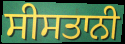
ਸੀਸਤਾਨੀ